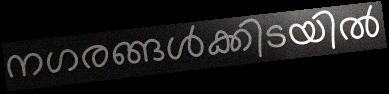
നഗരങ്ങൾക്കിടയിൽ